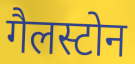
गैलस्टोन